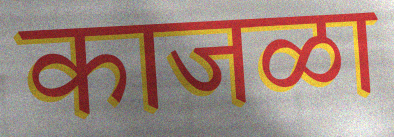
काजळा